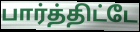
பார்த்திட்டே